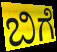
ಬಿಗೆ